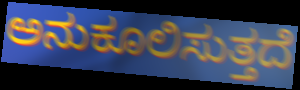
ಅನುಕೂಲಿಸುತ್ತದೆ